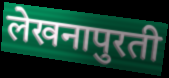
लेखनापुरती